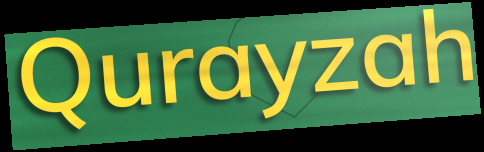
Qurayzah